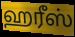
ஹரீஸ்